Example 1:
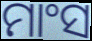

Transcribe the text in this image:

ମାଂସ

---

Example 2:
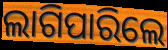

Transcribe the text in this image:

ଲାଗିପାରିଲେ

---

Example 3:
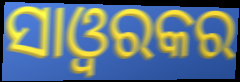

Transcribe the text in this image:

ସାଓ୍ୱରକର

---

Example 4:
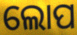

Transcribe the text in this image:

ଲୋପ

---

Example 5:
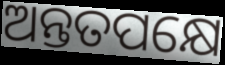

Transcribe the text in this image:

ଅନ୍ତତପକ୍ଷେ